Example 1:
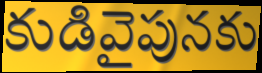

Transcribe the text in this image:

కుడివైపునకు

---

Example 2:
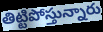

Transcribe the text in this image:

తిట్టిపోస్తున్నారు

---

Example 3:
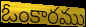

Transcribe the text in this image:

ఓంకారము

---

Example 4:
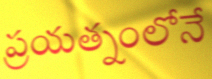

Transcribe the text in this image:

ప్రయత్నంలోనే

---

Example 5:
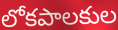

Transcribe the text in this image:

లోకపాలకుల